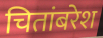
चितांबरेश